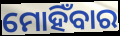
ମୋହିଁବାର